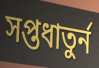
সপ্তধাতুর্ন